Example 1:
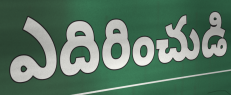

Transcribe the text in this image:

ఎదిరించుడి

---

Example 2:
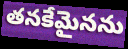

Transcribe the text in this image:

తనకేమైనను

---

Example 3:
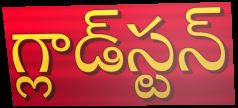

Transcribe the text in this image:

గ్లాడ్‌స్టన్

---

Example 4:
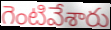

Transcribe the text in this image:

గెంటివేశారు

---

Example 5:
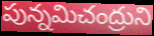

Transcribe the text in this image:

పున్నమిచంద్రుని